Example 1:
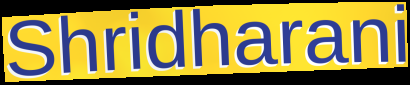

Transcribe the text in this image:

Shridharani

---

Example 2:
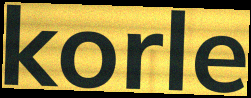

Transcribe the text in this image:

korle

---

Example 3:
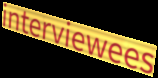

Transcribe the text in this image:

interviewees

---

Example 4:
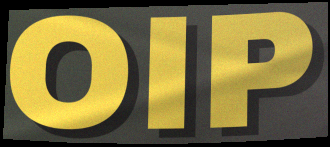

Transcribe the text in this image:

OIP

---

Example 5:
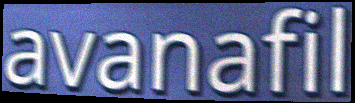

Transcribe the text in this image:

avanafil